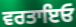
ਵਰਤਾਇਓ